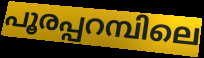
പൂരപ്പറമ്പിലെ